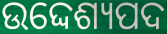
ଉଦ୍ଦେଶ୍ୟପଦ